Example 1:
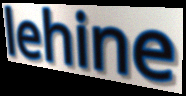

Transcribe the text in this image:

lehine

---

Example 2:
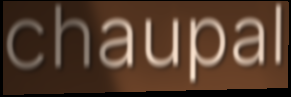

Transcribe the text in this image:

chaupal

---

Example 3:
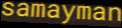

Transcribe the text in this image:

samayman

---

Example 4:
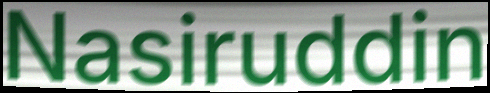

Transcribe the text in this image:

Nasiruddin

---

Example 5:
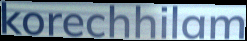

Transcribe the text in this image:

korechhilam